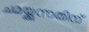
ചമയ്ക്കുന്നതിന്